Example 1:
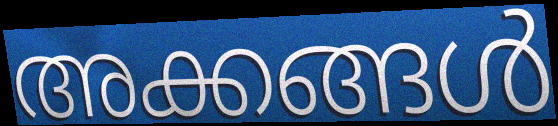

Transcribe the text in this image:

അക്കങ്ങൾ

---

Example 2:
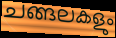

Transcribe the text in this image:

ചങ്ങലകളും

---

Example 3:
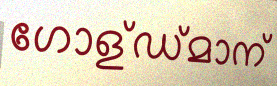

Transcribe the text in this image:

ഗോള്ഡ്മാന്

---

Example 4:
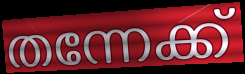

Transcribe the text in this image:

തന്നേക്ക്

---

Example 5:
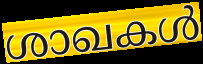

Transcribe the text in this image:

ശാഖകൾ